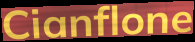
Cianflone